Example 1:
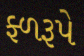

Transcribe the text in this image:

ફ્ળરૂપે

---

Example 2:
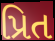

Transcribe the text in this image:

પ્રિત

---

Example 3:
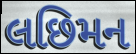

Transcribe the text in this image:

લછિમન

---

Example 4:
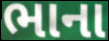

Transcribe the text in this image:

ભાના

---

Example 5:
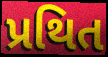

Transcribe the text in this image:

પ્રથિત